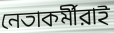
নেতাকর্মীরাই